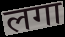
लगा